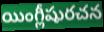
యింగ్లీషురచన